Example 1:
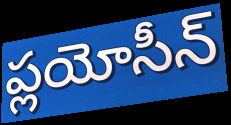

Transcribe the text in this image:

ప్లయోసీన్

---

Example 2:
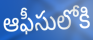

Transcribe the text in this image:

ఆఫీసులోకి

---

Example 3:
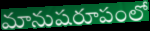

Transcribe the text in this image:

మానుషరూపంలో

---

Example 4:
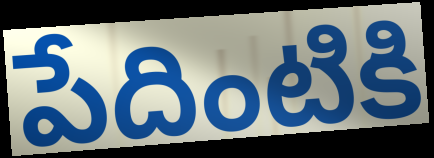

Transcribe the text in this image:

పేదింటికి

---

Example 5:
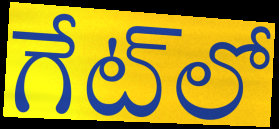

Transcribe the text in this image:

గేట్‌లో